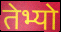
तेभ्यो